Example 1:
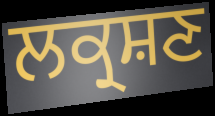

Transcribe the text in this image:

ਲਕ੍ਰਸ਼ਣ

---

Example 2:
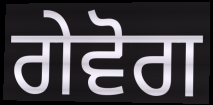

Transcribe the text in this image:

ਗੇਵੋਗ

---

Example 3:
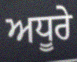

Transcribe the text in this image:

ਅਧੂਰੇ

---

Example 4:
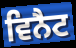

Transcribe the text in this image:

ਵਿਨੈਟ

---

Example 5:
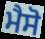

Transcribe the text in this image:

ਮੈਸੋ